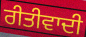
ਰੀਤੀਵਾਦੀ